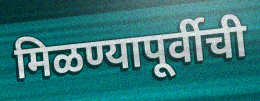
मिळण्यापूर्वीची